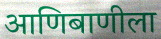
आणिबाणीला